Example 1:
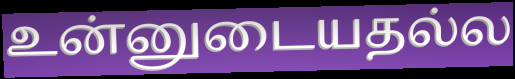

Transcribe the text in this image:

உன்னுடையதல்ல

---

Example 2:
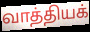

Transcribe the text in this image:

வாத்தியக்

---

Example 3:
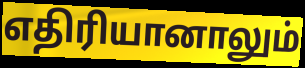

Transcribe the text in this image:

எதிரியானாலும்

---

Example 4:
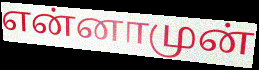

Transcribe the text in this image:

என்னாமுன்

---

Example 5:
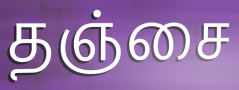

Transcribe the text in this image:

தஞ்சை